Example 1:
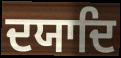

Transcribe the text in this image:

ਦਯਾਦਿ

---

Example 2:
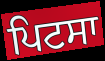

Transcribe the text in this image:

ਪਿਟਸਾ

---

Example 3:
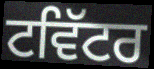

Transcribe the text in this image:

ਟਵਿੱਟਰ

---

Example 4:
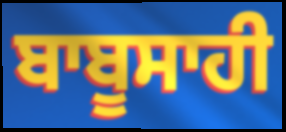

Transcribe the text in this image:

ਬਾਬੂਸਾਹੀ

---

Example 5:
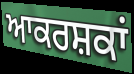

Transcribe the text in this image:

ਆਕਰਸ਼ਕਾਂ